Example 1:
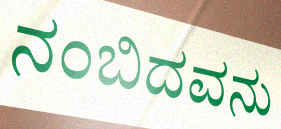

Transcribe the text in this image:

ನಂಬಿದವನು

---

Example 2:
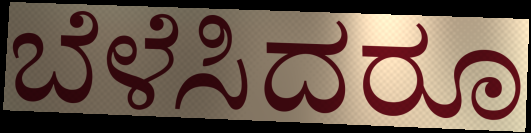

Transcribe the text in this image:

ಬೆಳೆಸಿದರೂ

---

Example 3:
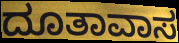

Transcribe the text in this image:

ದೂತಾವಾಸ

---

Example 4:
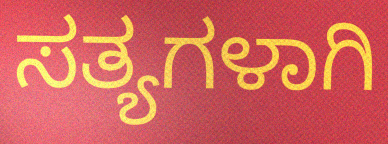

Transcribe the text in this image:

ಸತ್ಯಗಳಾಗಿ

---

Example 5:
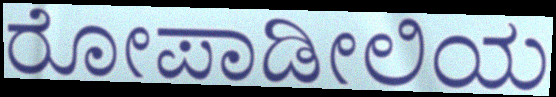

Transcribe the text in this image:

ರೋಪಾಡೀಲಿಯ